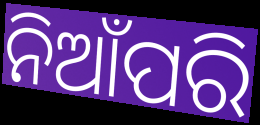
ନିଆଁପରି